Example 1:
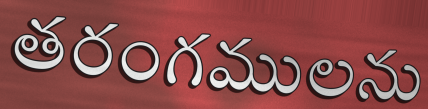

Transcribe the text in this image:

తరంగములను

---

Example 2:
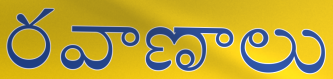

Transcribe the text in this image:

రవాణాలు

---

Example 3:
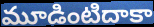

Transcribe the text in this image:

మూడింటిదాకా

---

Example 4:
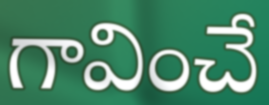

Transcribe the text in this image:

గావించే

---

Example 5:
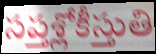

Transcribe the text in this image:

సప్తశ్లోకీస్తుతి